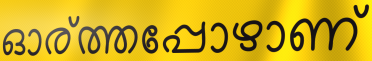
ഓര്ത്തപ്പോഴാണ്